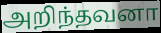
அறிந்தவனா